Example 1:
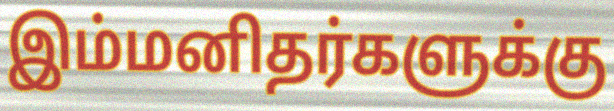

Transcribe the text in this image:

இம்மனிதர்களுக்கு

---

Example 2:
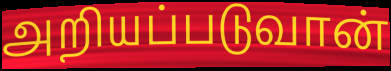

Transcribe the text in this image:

அறியப்படுவான்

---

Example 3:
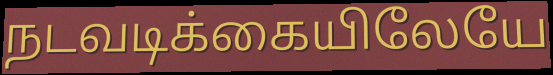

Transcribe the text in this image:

நடவடிக்கையிலேயே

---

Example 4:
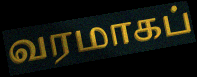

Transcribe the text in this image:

வரமாகப்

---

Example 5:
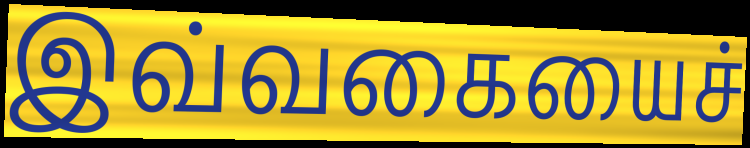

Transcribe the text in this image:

இவ்வகையைச்